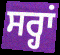
ਸਰ੍ਹਾਂ